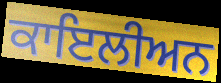
ਕਾਇਲੀਅਨ